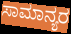
ಸಾಮಾನ್ಯರ